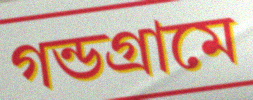
গন্ডগ্রামে